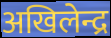
अखिलेन्द्र